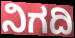
ನಿಗದಿ